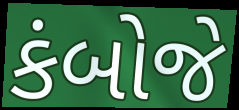
કંબોજે